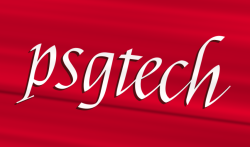
psgtech